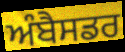
ਅੰਬੈਸਡਰ